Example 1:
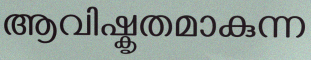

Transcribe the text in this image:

ആവിഷ്കൃതമാകുന്ന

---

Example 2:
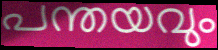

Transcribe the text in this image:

പന്തയവും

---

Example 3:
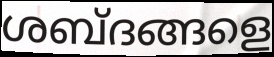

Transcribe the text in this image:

ശബ്ദങ്ങളെ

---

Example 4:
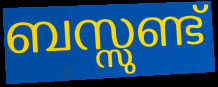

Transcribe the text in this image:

ബസ്സുണ്ട്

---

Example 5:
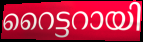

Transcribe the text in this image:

റൈട്ടറായി